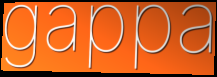
gappa